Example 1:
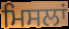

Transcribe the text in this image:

ਮਿਸਲਾਂ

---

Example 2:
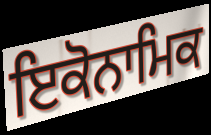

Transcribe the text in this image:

ਇਕੋਨਾਮਿਕ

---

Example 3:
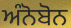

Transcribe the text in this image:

ਅੰਨੋਬੋਨ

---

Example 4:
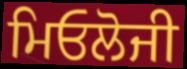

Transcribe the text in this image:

ਮਿਓਲੋਜੀ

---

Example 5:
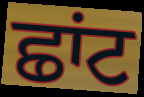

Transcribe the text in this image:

ਛਾਂਟ